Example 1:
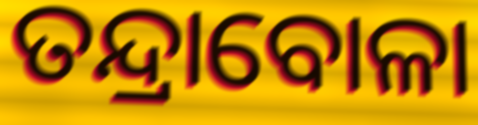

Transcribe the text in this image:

ତନ୍ଦ୍ରାବୋଳା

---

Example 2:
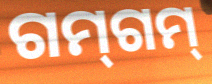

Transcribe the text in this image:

ଗମ୍‌ଗମ୍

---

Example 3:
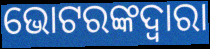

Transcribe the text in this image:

ଭୋଟରଙ୍କଦ୍ଵାରା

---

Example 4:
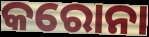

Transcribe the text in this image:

କରୋନା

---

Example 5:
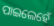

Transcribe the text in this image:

ପାଇଲେହେଁ